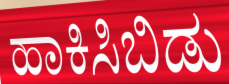
ಹಾಕಿಸಿಬಿಡು